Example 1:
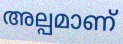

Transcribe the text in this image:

അല്പമാണ്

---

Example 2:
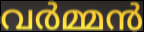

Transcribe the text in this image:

വർമ്മൻ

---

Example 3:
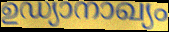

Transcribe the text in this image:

ഉഡ്യാനാഖ്യം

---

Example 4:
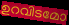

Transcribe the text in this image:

ഉറവിടമോ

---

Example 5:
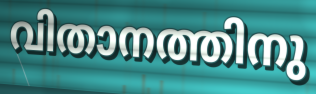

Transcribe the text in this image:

വിതാനത്തിനു